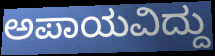
ಅಪಾಯವಿದ್ದು